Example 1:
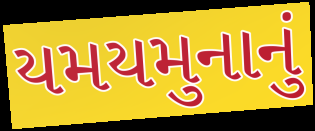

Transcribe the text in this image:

યમયમુનાનું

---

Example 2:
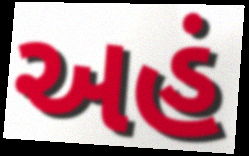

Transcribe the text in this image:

અહં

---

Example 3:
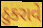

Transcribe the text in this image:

ઠુકરાવે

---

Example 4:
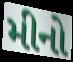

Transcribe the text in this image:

મીનો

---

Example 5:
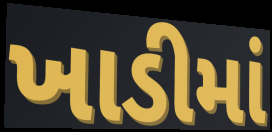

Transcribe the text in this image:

ખાડીમાં